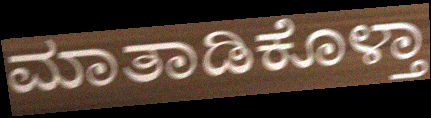
ಮಾತಾಡಿಕೊಳ್ತಾ